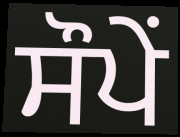
ਸੌਪੇਂ